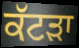
ਕੱਟੜਾ